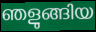
ഞളുങ്ങിയ